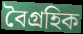
বৈগ্রহিক